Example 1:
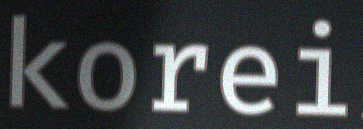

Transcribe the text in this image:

korei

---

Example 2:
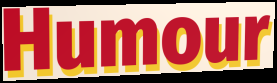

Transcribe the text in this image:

Humour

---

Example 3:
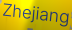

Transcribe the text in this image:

Zhejiang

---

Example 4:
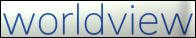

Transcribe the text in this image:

worldview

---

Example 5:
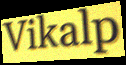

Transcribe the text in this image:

Vikalp